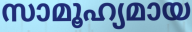
സാമൂഹ്യമായ